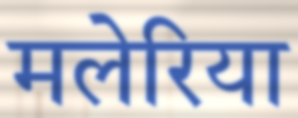
मलेरिया